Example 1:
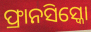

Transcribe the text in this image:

ଫ୍ରାନସିସ୍କୋ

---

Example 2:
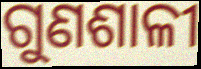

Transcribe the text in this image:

ଗୁଣଶାଳୀ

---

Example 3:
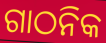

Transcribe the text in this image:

ଗାଠନିକ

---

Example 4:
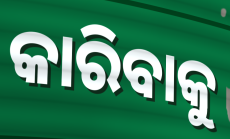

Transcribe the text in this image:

କାରିବାକୁ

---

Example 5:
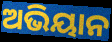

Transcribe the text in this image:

ଅଭିୟାନ